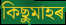
কিছুমাহৰ